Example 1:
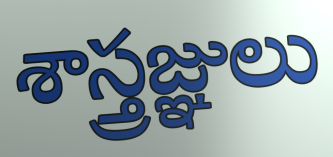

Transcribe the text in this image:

శాస్త్రజ్ఞులు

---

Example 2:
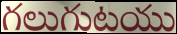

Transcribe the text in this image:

గలుగుటయు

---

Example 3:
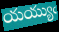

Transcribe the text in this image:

యయ్యుఁ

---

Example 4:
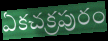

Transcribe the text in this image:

ఏకచక్రపురం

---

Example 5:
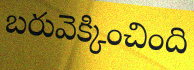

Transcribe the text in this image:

బరువెక్కించింది